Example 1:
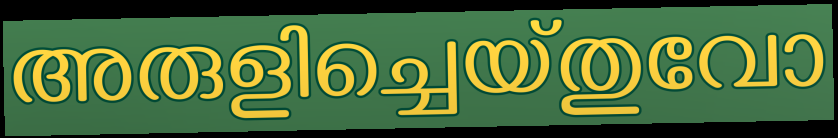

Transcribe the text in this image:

അരുളിച്ചെയ്തുവോ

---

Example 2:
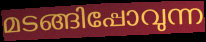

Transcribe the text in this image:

മടങ്ങിപ്പോവുന്ന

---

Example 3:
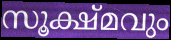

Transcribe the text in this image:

സൂക്ഷ്മവും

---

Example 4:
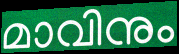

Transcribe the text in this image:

മാവിനും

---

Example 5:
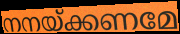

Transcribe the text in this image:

നനയ്ക്കണമേ